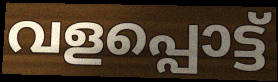
വളപ്പൊട്ട്